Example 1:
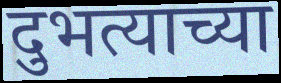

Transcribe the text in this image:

दुभत्याच्या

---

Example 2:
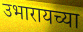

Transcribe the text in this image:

उभारायच्या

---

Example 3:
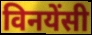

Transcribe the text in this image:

विनयेंसी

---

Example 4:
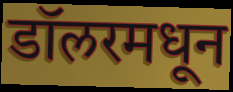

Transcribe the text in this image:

डॉलरमधून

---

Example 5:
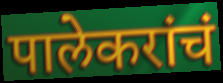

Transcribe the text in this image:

पालेकरांचं